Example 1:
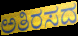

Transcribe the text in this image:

ಅತಿರಸದ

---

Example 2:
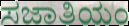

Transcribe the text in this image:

ಸಜಾತಿಯಂ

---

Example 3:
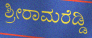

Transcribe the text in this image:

ಶ್ರೀರಾಮರೆಡ್ಡಿ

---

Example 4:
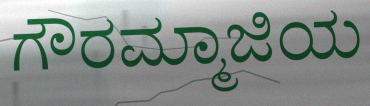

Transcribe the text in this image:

ಗೌರಮ್ಮಾಜಿಯ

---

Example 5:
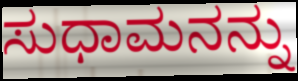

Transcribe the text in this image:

ಸುಧಾಮನನ್ನು